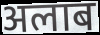
अलाब